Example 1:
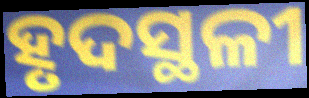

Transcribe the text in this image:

ହୃଦସ୍ଥଳୀ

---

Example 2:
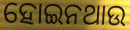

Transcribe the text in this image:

ହୋଇନଥାଉ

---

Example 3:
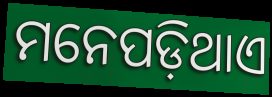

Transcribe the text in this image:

ମନେପଡ଼ିଥାଏ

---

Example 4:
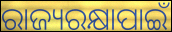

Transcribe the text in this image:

ରାଜ୍ୟରକ୍ଷାପାଇଁ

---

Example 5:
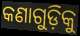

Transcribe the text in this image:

କଣାଗୁଡ଼ିକୁ